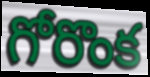
గోరొంక